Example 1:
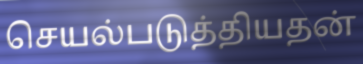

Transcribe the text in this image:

செயல்படுத்தியதன்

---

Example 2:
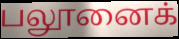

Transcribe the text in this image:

பலூனைக்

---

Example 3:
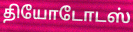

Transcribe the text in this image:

தியோடோடஸ்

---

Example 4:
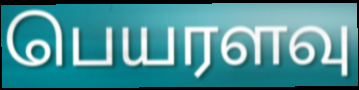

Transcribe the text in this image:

பெயரளவு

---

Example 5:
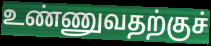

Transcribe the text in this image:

உண்ணுவதற்குச்